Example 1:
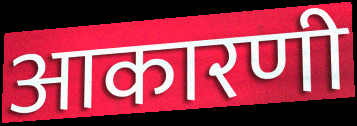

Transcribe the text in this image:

आकारणी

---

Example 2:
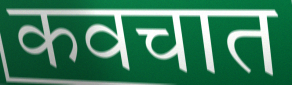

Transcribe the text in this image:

कवचात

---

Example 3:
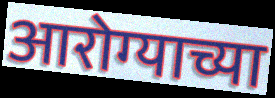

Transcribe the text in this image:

आरोग्याच्या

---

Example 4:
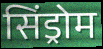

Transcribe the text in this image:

सिंड्रोम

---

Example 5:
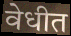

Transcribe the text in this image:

वेधीत